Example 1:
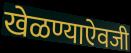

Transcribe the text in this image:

खेळण्याऐवजी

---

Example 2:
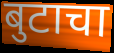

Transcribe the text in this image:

बुटाचा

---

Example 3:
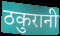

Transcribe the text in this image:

ठकुरानी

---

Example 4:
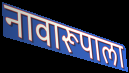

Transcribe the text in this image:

नावारूपाला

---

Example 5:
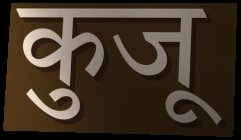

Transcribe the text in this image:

कुजू